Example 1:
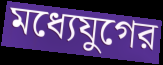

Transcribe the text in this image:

মধ্যেযুগের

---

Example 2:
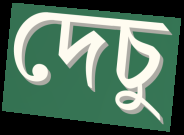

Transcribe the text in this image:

দেচু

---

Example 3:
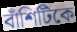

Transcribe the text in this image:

বাঁশিটিকে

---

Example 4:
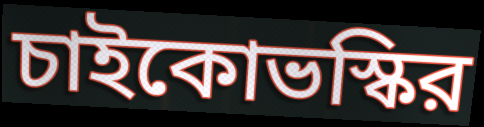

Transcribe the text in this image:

চাইকোভস্কির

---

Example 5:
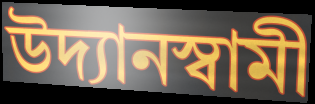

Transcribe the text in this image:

উদ্যানস্বামী